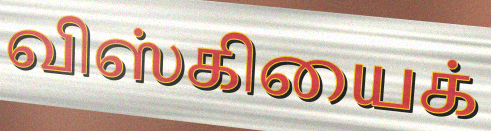
விஸ்கியைக்